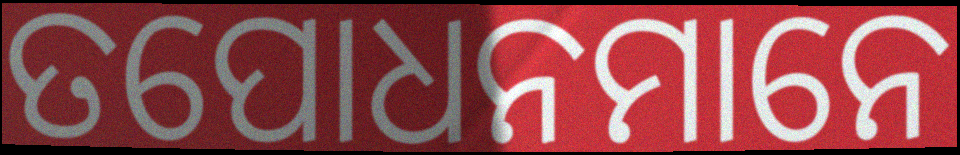
ତପୋଧନମାନେ